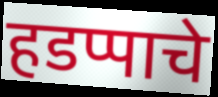
हडप्पाचे